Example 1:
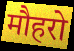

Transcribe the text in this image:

मौहरो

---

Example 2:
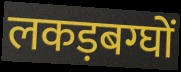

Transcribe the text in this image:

लकड़बग्घों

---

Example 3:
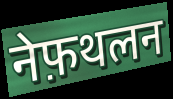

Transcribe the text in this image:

नेफ़थलन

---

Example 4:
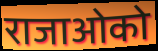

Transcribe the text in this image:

राजाओको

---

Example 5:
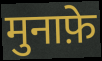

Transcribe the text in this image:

मुनाफ़े